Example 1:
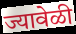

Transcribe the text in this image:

ज्यावेळी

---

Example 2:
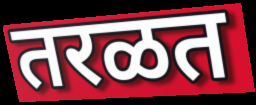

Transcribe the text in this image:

तरळत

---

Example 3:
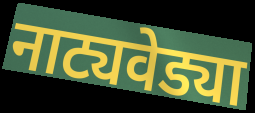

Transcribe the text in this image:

नाट्यवेड्या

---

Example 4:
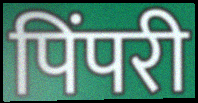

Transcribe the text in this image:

पिंपरी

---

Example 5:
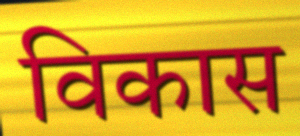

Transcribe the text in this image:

विकास